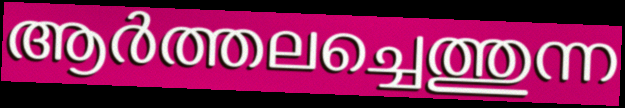
ആർത്തലച്ചെത്തുന്ന